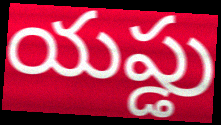
యప్డు